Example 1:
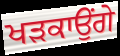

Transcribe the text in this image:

ਖੜਕਾਉਂਗੇ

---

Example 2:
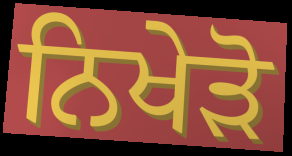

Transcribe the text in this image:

ਨਿਖੇੜੋ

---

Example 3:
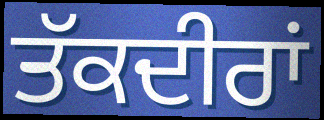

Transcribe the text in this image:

ਤੱਕਦੀਰਾਂ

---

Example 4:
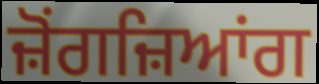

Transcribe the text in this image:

ਜ਼ੋਂਗਜ਼ਿਆਂਗ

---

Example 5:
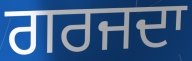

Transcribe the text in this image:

ਗਰਜਦਾ